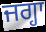
ਜਗ੍ਹਾ